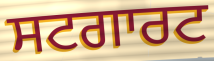
ਸਟਗਾਰਟ